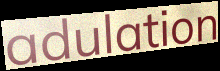
adulation